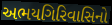
અભયગિરિવાસિનો